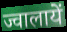
ज्वालायें